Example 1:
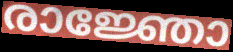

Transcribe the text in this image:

രാജ്ഞോ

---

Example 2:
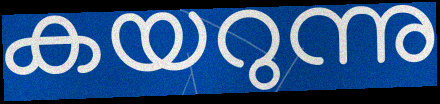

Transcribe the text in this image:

കയറുന്നു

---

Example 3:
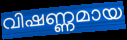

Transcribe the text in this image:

വിഷണ്ണമായ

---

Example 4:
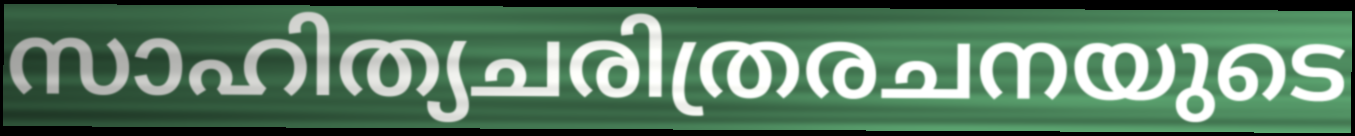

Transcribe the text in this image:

സാഹിത്യചരിത്രരചനയുടെ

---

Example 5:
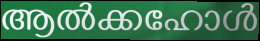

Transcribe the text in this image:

ആൽക്കഹോൾ